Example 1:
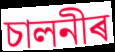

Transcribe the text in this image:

চালনীৰ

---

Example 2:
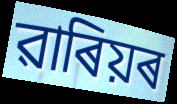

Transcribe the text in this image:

ৱাৰিয়ৰ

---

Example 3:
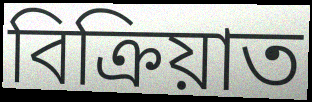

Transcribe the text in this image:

বিক্ৰিয়াত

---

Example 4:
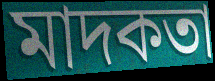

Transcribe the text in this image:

মাদকতা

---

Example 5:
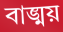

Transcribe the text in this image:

বাঙ্ময়